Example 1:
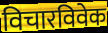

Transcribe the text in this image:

विचारविवेक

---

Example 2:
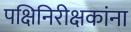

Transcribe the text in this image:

पक्षिनिरीक्षकांना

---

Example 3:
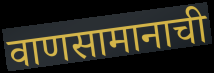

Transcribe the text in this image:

वाणसामानाची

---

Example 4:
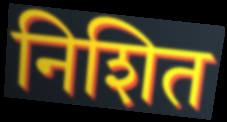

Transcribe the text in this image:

निशित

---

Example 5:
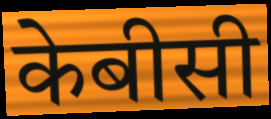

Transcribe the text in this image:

केबीसी